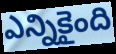
ఎన్నికైంది